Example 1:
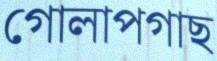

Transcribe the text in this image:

গোলাপগাছ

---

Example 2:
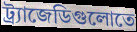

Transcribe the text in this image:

ট্র্যাজেডিগুলোতে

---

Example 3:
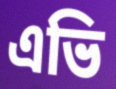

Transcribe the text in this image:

এভি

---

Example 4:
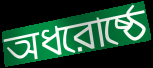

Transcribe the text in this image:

অধরোষ্ঠে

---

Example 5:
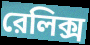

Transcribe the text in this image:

রেলিক্স